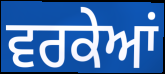
ਵਰਕੇਆਂ